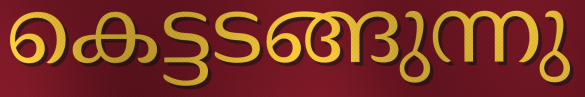
കെട്ടടങ്ങുന്നു